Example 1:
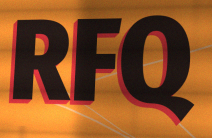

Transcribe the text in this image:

RFQ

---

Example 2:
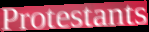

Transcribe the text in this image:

Protestants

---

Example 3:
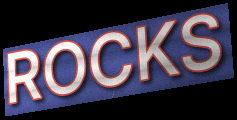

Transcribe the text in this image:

ROCKS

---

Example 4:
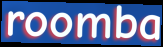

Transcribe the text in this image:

roomba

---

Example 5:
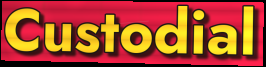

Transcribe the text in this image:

Custodial